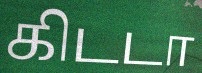
கிடடா